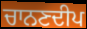
ਚਾਨਣਦੀਪ